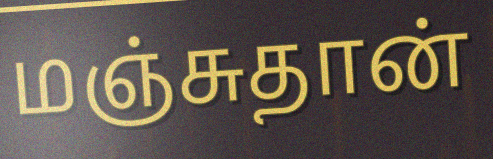
மஞ்சுதான்